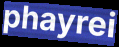
phayrei